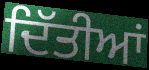
ਦਿੱਤੀਆਂ